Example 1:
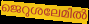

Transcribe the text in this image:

ജെറുശലേമിൽ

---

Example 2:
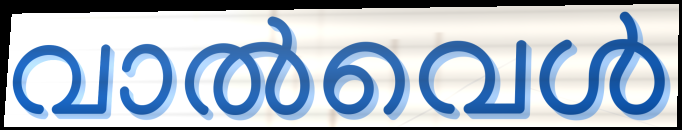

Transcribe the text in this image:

വാൽവെൾ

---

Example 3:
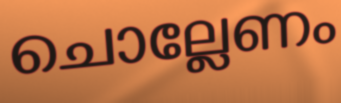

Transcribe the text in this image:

ചൊല്ലേണം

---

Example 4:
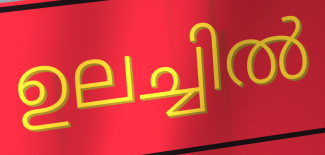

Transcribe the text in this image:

ഉലച്ചിൽ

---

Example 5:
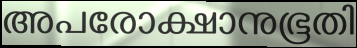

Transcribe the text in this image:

അപരോക്ഷാനുഭൂതി